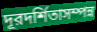
দূরদর্শিতাসম্পন্ন